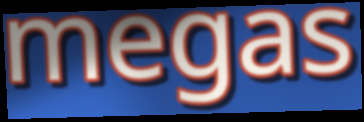
megas